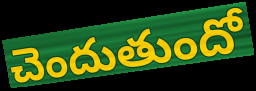
చెందుతుందో